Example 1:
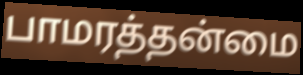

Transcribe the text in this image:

பாமரத்தன்மை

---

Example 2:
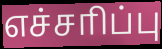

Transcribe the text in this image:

எச்சரிப்பு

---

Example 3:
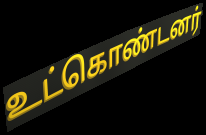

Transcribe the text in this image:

உட்கொண்டனர்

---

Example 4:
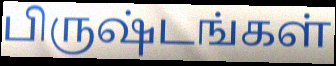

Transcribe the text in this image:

பிருஷ்டங்கள்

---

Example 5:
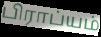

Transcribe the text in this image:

பிராப்யம்